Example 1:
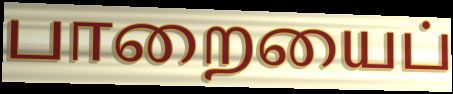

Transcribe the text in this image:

பாறையைப்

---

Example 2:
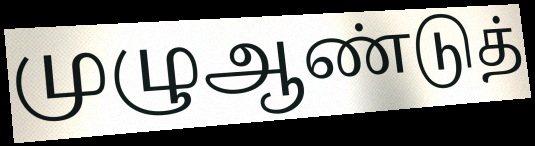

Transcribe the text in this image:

முழுஆண்டுத்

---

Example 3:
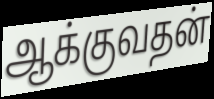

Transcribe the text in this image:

ஆக்குவதன்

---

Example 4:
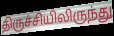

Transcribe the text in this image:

திருச்சியிலிருந்து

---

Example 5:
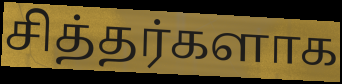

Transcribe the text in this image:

சித்தர்களாக